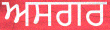
ਅਸਗਰ